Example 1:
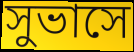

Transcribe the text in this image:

সুভাসে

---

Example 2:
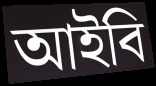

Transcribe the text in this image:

আইবি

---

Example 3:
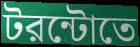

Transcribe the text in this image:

টরন্টোতে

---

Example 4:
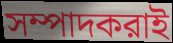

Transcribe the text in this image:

সম্পাদকরাই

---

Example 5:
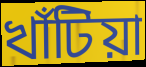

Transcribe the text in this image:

খাঁটিয়া